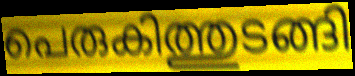
പെരുകിത്തുടങ്ങി